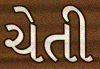
ચેતી